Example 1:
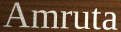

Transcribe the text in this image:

Amruta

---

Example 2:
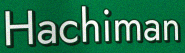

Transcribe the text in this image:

Hachiman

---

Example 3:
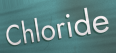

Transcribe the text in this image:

Chloride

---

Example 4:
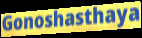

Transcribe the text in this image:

Gonoshasthaya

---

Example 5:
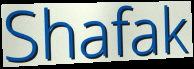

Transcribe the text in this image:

Shafak